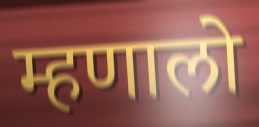
म्हणालो